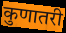
कुणातरी